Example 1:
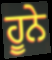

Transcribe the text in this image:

ਹੂਨੇ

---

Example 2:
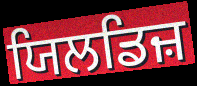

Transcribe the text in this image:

ਯਿਲਡਿਜ਼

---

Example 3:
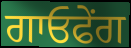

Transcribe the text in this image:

ਗਾਓਫੇਂਗ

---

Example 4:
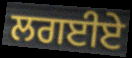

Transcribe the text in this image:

ਲਗਈਏ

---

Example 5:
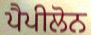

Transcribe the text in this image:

ਪੈਪੀਲੋਨ